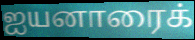
ஐயனாரைக்